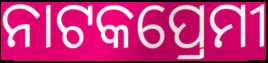
ନାଟକପ୍ରେମୀ